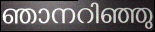
ഞാനറിഞ്ഞു